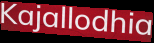
Kajallodhia